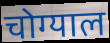
चोग्याल